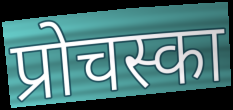
प्रोचस्का